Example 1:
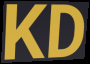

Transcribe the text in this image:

KD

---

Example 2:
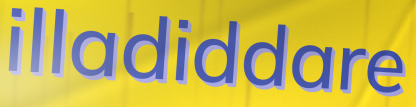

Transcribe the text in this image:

illadiddare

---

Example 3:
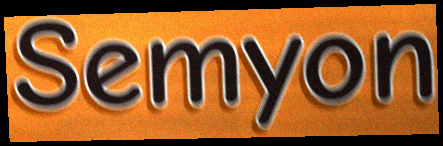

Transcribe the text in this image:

Semyon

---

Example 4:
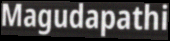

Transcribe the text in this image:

Magudapathi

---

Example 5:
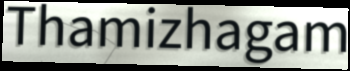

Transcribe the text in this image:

Thamizhagam